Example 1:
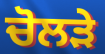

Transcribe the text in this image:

ਚੋਲੜੇ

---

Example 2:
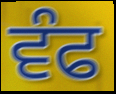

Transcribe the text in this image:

ਵੰਫ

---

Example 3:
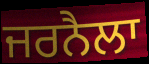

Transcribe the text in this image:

ਜਰਨੈਲਾ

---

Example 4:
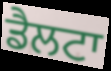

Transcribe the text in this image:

ਡੈਲਟਾ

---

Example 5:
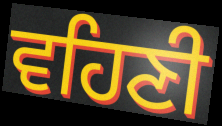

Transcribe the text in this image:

ਵਹਿਣੀ